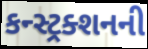
કન્સ્ટ્રક્શનની